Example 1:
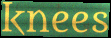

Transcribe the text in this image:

knees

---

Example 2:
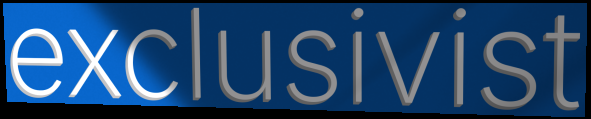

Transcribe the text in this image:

exclusivist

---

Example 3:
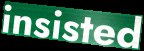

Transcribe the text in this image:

insisted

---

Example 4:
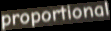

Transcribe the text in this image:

proportional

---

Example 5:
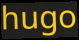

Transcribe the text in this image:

hugo